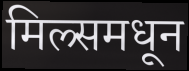
मिल्समधून